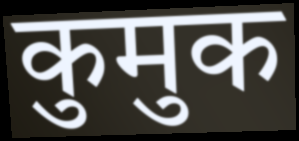
कुमुक